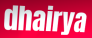
dhairya